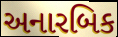
અનારબિક